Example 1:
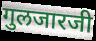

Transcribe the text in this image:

गुलजारजी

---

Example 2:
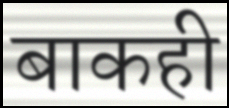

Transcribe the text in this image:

बाकही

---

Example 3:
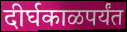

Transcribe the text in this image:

दीर्घकाळपर्यंत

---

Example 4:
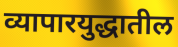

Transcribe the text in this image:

व्यापारयुद्धातील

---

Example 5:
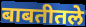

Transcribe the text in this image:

बाबतीतले